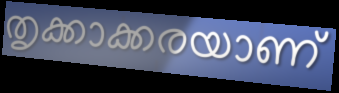
തൃക്കാക്കരയാണ്